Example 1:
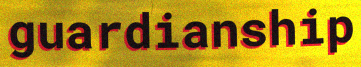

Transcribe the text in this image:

guardianship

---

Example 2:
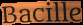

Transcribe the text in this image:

Bacille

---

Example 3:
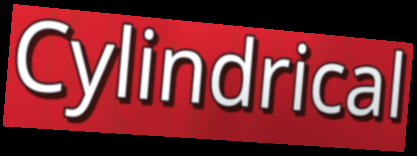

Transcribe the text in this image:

Cylindrical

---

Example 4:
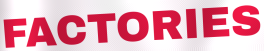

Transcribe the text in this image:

FACTORIES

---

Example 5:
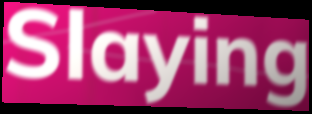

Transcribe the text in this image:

Slaying